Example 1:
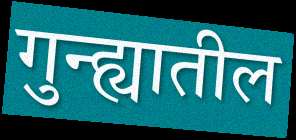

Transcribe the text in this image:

गुन्ह्यातील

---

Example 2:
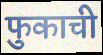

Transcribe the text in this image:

फुकाची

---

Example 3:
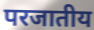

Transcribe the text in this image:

परजातीय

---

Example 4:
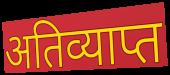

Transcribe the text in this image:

अतिव्याप्त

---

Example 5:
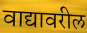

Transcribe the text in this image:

वाद्यावरील